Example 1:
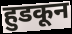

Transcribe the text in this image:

हुडकून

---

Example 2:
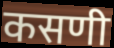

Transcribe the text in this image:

कसणी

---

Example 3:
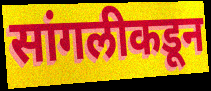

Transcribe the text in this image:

सांगलीकडून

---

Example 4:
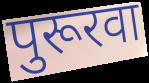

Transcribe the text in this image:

पुरूरवा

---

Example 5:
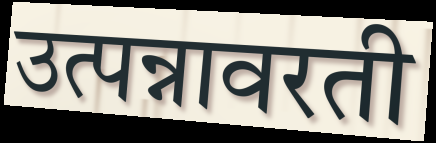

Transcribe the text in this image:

उत्पन्नावरती